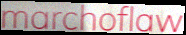
marchoflaw